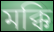
মক্কি